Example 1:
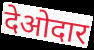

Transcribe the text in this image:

देओदार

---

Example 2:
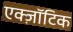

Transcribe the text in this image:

एक्ज़ॉटिक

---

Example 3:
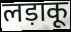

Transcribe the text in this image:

लड़ाकू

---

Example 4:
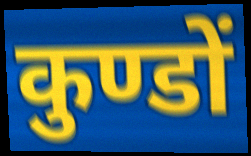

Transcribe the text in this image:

कुण्डों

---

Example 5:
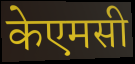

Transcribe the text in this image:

केएमसी